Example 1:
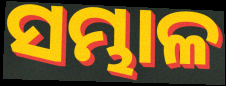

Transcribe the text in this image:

ସମ୍ଭାଳ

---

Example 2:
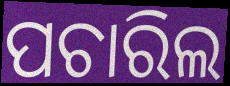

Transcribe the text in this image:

ପଚାରିଲ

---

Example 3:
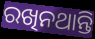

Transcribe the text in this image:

ରଖିନଥାନ୍ତି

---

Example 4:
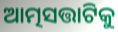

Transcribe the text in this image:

ଆତ୍ମସତ୍ତାଟିକୁ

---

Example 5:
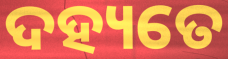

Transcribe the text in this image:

ଦହ୍ୟତେ